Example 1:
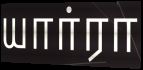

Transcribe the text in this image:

யார்ரா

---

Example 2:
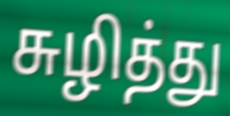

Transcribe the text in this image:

சுழித்து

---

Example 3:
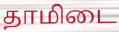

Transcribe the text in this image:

தாமிடை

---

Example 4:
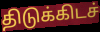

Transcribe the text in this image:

திடுக்கிடச்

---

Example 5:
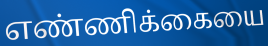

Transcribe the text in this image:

எண்ணிக்கையை